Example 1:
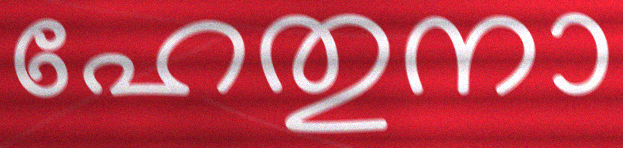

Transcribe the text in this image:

ഹേതുനാ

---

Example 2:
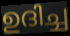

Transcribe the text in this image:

ഉദിച്ച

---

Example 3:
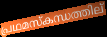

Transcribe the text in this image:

പ്രഥമസ്കന്ധത്തില്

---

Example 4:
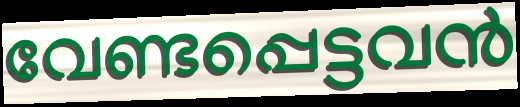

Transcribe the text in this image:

വേണ്ടപ്പെട്ടവൻ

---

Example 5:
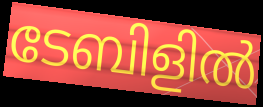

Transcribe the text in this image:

ടേബിളിൽ